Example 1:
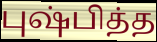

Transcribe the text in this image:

புஷ்பித்த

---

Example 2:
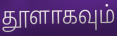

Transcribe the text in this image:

தூளாகவும்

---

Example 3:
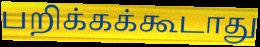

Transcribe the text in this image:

பறிக்கக்கூடாது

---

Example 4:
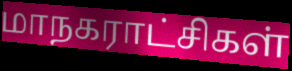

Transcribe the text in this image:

மாநகராட்சிகள்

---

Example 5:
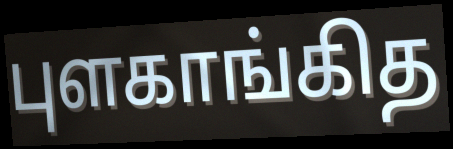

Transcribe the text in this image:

புளகாங்கித